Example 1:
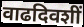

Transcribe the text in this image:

वाढदिवशीं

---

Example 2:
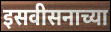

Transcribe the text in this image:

इसवीसनाच्या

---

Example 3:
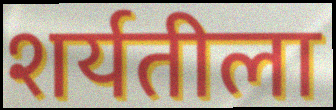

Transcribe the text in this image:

शर्यतीला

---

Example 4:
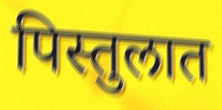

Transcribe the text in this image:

पिस्तुलात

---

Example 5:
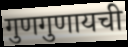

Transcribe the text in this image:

गुणगुणायची